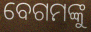
ବେଗମଙ୍କୁ